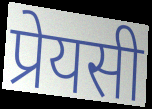
प्रेयसी